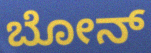
ಬೋನ್